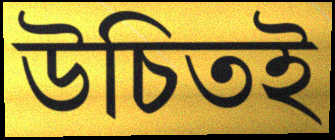
উচিতই